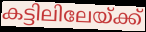
കട്ടിലിലേയ്ക്ക്